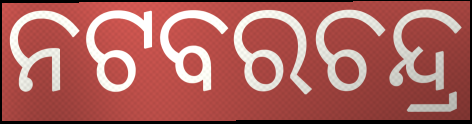
ନଟବରଚନ୍ଦ୍ର